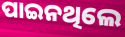
ପାଇନଥିଲେ